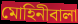
মোহিনীবালা